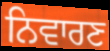
ਨਿਵਾਰਣ